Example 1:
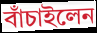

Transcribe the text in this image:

বাঁচাইলেন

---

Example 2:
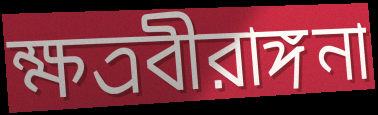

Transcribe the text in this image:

ক্ষত্রবীরাঙ্গনা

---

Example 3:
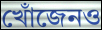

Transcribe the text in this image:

খোঁজেনও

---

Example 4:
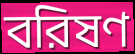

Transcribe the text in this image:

বরিষণ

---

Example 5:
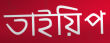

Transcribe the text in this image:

তাইয়িপ